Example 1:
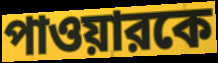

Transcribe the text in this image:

পাওয়ারকে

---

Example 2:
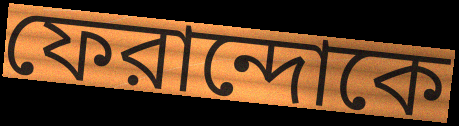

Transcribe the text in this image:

ফেরান্দোকে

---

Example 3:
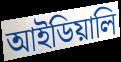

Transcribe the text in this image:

আইডিয়ালি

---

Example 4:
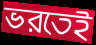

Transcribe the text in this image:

ভরতেই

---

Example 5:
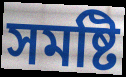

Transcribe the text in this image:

সমষ্টি